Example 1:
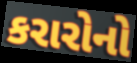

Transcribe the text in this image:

કરારોનો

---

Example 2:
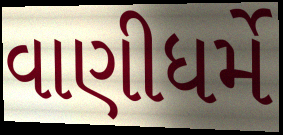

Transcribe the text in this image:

વાણીધર્મે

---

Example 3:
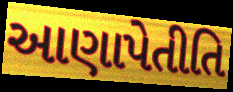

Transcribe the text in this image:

આણાપેતીતિ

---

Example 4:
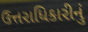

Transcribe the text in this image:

ઉત્તરાધિકારીનું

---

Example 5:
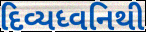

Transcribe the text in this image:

દિવ્યધ્વનિથી